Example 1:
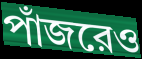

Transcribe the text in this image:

পাঁজরেও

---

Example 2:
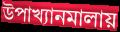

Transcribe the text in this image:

উপাখ্যানমালায়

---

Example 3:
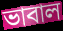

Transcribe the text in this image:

ভাবাল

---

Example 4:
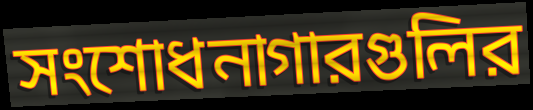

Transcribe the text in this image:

সংশোধনাগারগুলির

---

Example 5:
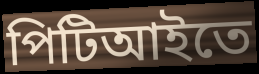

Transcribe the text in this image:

পিটিআইতে